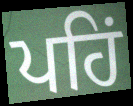
ਪਹਿਂ